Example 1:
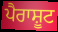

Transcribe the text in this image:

ਪੈਰਾਸ਼ੂਟ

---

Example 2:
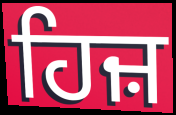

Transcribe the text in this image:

ਹਿਜ਼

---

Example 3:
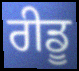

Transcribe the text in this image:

ਰੀਡੂ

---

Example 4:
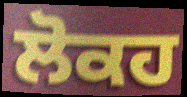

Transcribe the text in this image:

ਲੋਕਹ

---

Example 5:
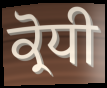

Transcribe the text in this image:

ਕ੍ਰੋਧੀ